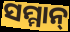
ସମ୍ମାନ୍